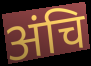
अंचि